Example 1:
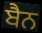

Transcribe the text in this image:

ਬੈਨ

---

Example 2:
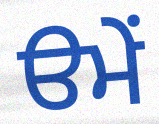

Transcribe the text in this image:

ੳਮੇਂ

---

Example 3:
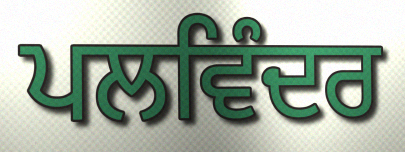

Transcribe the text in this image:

ਪਲਵਿੰਦਰ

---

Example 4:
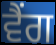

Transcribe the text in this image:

ਵੈਂਗ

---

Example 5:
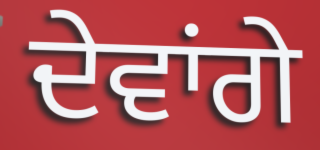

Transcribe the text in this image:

ਦੇਵਾਂਗੇ